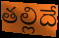
తల్లిదే